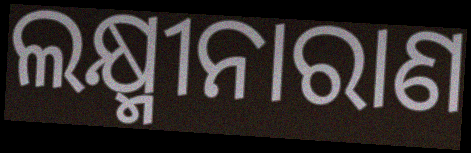
ଲକ୍ଷ୍ମୀନାରାଣ